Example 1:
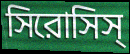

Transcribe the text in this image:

সিরোসিস্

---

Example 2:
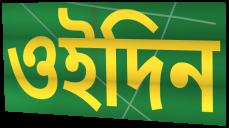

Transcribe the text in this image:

ওইদিন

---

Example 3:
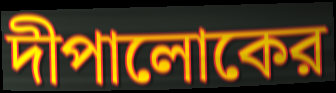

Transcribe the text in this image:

দীপালোকের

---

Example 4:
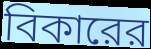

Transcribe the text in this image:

বিকারের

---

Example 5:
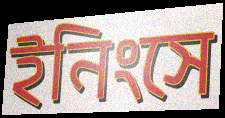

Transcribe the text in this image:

ইনিংসে